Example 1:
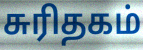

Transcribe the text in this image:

சுரிதகம்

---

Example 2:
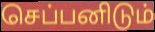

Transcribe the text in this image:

செப்பனிடும்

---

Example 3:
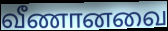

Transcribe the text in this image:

வீணானவை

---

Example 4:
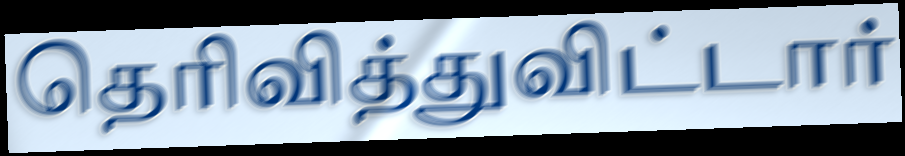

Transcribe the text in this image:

தெரிவித்துவிட்டார்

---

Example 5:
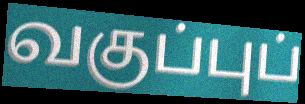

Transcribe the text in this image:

வகுப்புப்